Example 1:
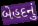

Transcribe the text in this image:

બેહદનું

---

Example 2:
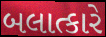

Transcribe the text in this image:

બલાત્કારે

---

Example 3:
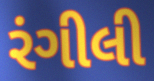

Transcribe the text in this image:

રંગીલી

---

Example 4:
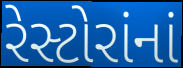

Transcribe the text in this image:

રેસ્ટોરાંનાં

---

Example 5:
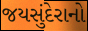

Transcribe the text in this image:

જયસુંદેરાનો